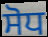
ਸੋਧ